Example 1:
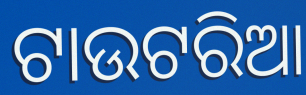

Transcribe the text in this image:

ଟାଉଟରିଆ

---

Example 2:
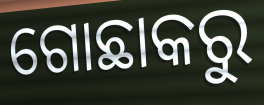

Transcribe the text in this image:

ଗୋଛାକରୁ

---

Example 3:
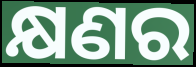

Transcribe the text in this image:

କ୍ଷଣର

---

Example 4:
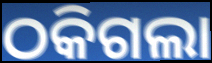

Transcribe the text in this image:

ଠକିଗଲା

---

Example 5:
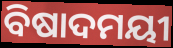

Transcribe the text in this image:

ବିଷାଦମୟୀ